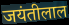
जयंतीलाल